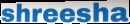
shreesha